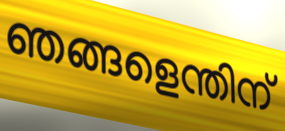
ഞങ്ങളെന്തിന്